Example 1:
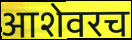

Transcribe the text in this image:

आशेवरच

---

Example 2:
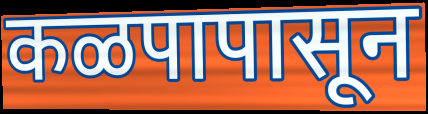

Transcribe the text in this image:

कळपापासून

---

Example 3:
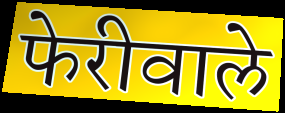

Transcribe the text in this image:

फेरीवाले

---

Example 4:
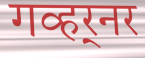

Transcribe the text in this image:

गव्हर्नर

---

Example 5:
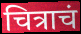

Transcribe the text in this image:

चित्राचं